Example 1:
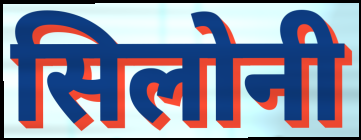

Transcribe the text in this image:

सिलोनी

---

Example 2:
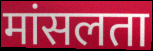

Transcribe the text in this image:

मांसलता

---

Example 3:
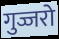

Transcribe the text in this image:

गुज्जरो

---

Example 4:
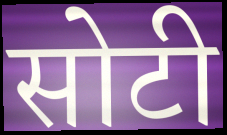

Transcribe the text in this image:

सोटी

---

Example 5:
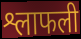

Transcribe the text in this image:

श्लाफली